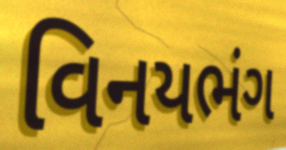
વિનયભંગ